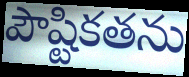
పౌష్టికతను